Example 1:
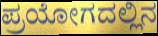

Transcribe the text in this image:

ಪ್ರಯೋಗದಲ್ಲಿನ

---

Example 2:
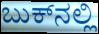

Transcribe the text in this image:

ಬುಕ್‌ನಲ್ಲಿ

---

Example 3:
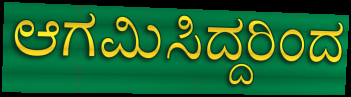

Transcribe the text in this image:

ಆಗಮಿಸಿದ್ದರಿಂದ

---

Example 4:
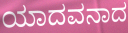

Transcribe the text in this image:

ಯಾದವನಾದ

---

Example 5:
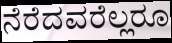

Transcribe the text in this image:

ನೆರೆದವರೆಲ್ಲರೂ